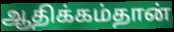
ஆதிக்கம்தான்